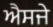
ਐਸਜੇ